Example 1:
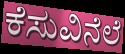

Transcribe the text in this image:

ಕೆಸುವಿನೆಲೆ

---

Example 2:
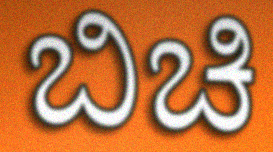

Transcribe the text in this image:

ಬಿಚಿ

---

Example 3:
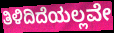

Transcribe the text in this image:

ತಿಳಿದಿದೆಯಲ್ಲವೇ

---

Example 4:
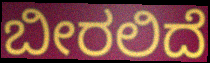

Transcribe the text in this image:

ಬೀರಲಿದೆ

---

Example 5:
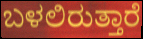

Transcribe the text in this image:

ಬಳಲಿರುತ್ತಾರೆ